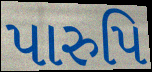
પારુપિ